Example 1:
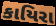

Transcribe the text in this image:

કાયિરા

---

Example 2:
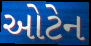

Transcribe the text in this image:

ઓટેન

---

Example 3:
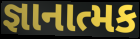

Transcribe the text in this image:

જ્ઞાનાત્મક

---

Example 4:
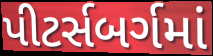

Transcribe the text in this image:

પીટર્સબર્ગમાં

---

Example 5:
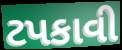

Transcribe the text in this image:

ટપકાવી